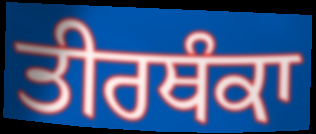
ਤੀਰਥੰਕਾ